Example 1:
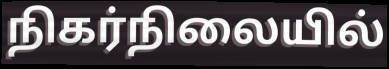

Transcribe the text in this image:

நிகர்நிலையில்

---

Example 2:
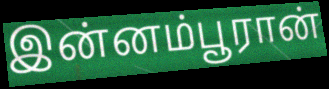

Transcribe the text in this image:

இன்னம்பூரான்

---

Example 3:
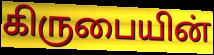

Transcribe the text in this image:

கிருபையின்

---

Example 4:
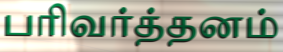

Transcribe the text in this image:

பரிவர்த்தனம்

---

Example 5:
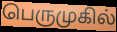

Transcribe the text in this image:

பெருமுகில்